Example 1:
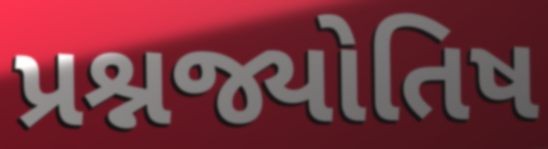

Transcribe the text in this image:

પ્રશ્નજ્યોતિષ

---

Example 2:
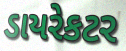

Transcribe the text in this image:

ડાયરેકટર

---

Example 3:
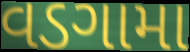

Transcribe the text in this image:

વડગામા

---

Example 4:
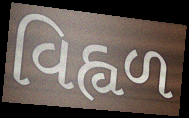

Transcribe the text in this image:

વિહ્વળ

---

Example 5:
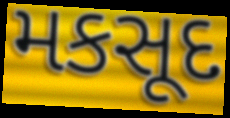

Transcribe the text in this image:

મકસૂદ